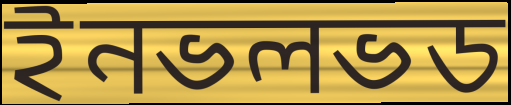
ইনভলভড